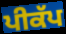
ਪੀਕੱਪ